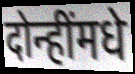
दोन्हींमधे